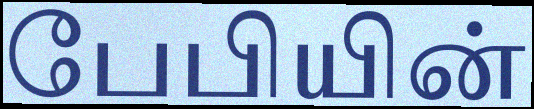
பேபியின்